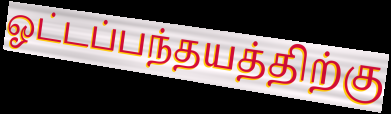
ஓட்டப்பந்தயத்திற்கு